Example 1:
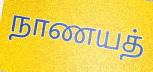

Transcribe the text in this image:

நாணயத்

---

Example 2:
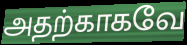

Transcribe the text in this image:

அதற்காகவே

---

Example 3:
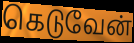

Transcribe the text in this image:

கெடுவேன்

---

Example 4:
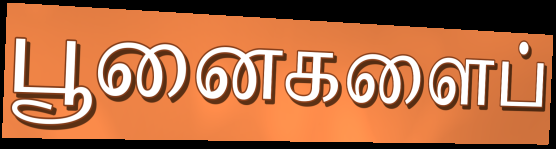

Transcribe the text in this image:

பூனைகளைப்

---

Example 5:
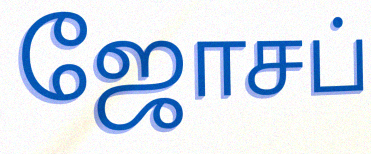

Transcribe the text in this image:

ஜோசப்